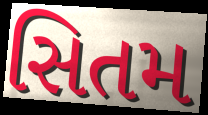
સિતમ